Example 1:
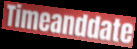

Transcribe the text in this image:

Timeanddate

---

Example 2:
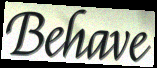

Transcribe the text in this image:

Behave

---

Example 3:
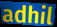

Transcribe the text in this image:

adhil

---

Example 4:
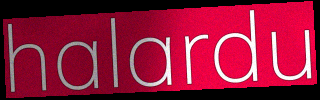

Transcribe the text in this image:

halardu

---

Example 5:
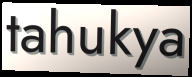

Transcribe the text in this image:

tahukya